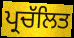
ਪ੍ਰਚੱਲਿਤ